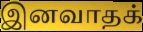
இனவாதக்